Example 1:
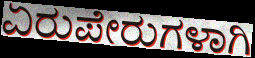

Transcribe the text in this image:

ಏರುಪೇರುಗಳಾಗಿ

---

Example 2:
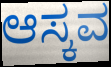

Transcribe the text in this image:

ಆಸ್ಕವ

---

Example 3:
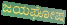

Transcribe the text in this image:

ಜಯಘೋಷ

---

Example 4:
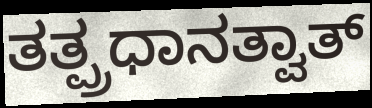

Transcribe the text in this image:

ತತ್ಪ್ರಧಾನತ್ವಾತ್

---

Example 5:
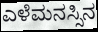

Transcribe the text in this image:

ಎಳೆಮನಸ್ಸಿನ